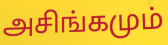
அசிங்கமும்